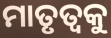
ମାତୃତ୍ବକୁ